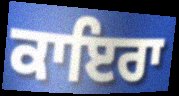
ਕਾਇਰਾ